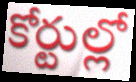
కోర్టుల్లో